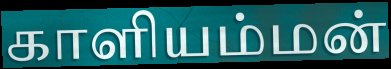
காளியம்மன்